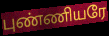
புண்ணியரே